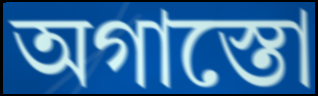
অগাস্তো